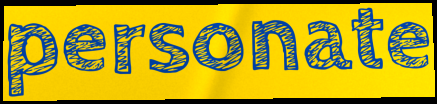
personate